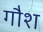
गौश